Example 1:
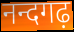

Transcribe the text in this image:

नन्दगढ़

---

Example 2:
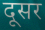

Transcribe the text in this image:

दूसर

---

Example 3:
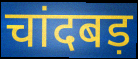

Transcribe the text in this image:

चांदबड़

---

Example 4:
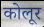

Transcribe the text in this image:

कोलूर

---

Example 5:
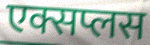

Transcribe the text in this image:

एक्सप्लस